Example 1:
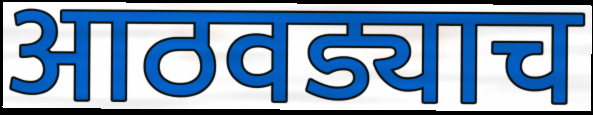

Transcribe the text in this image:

आठवड्याच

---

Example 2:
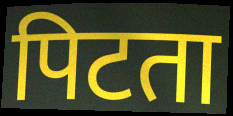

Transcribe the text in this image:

पिटता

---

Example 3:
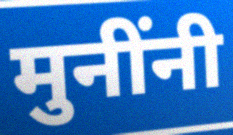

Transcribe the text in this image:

मुनींनी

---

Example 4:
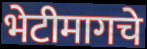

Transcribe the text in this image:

भेटीमागचे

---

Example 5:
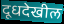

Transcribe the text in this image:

दूधदेखील